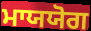
ਮਾਯਯੋਗ